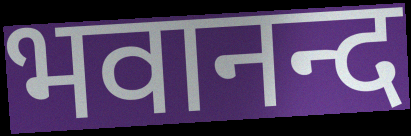
भवानन्द